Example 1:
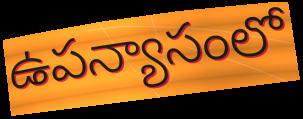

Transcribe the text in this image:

ఉపన్యాసంలో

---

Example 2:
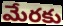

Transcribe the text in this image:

మేరకు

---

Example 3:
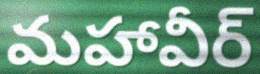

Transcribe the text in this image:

మహావీర్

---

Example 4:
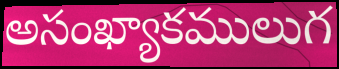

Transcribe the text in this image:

అసంఖ్యాకములుగ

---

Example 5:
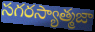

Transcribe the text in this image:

సగరస్యాత్మజా